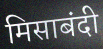
मिसाबंदी